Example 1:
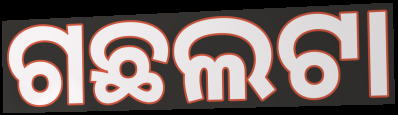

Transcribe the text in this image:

ଗଛଲଟା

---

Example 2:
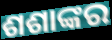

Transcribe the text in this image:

ଶଶାଙ୍କର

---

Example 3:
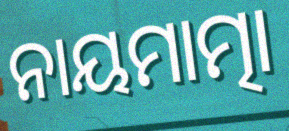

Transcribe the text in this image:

ନାୟମାତ୍ମା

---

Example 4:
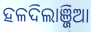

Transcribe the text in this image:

ହଳଦିଲାଞ୍ଜିଆ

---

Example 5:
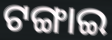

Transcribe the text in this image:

ଟଙ୍ଗାଇ